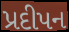
પ્રદીપન